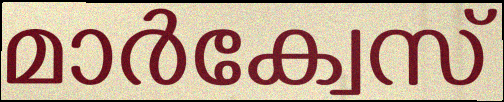
മാർക്വേസ്